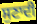
ਸੁਣਾਦੀ